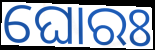
ଘୋରଃ